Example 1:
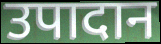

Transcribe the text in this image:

उपादान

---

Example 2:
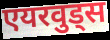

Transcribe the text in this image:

एयरवुड्स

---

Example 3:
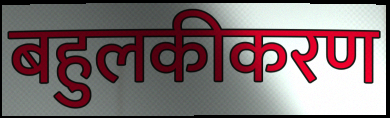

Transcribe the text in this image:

बहुलकीकरण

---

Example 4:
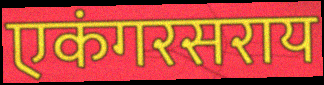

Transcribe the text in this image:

एकंगरसराय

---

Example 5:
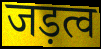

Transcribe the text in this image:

जड़त्व